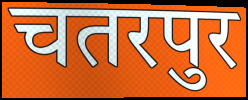
चतरपुर